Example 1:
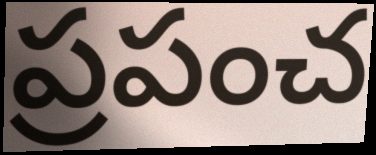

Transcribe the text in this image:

ప్రపంచ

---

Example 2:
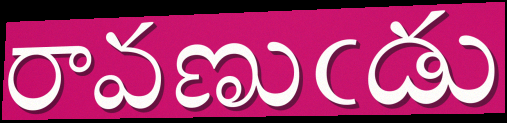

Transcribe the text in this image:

రావణుఁడు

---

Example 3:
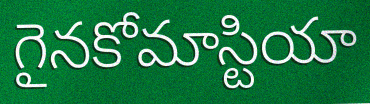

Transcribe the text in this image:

గైనకోమాస్టియా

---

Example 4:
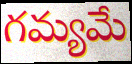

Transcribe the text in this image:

గమ్యమే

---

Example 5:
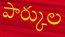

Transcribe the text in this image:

పార్కుల